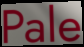
Pale